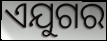
ଏଯୁଗର